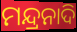
ମନ୍ଦ୍ରନାଦି